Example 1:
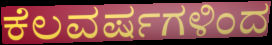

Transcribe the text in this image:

ಕೆಲವರ್ಷಗಳಿಂದ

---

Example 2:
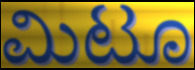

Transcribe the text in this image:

ಮಿಟೂ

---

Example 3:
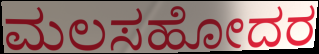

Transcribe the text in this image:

ಮಲಸಹೋದರ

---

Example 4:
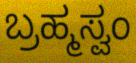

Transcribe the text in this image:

ಬ್ರಹ್ಮಸ್ವಂ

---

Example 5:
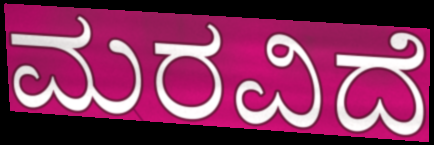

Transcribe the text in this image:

ಮರವಿದೆ